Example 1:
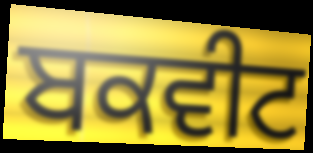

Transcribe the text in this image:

ਬਕਵੀਟ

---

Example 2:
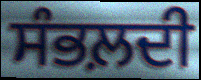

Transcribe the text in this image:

ਸੰਭਲ਼ਦੀ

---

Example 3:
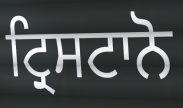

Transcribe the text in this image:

ਟ੍ਰਿਸਟਾਨੋ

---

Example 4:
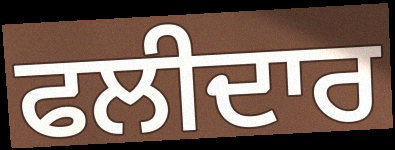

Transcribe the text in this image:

ਫਲੀਦਾਰ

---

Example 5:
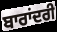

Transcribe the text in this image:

ਬਾਰਾਂਦਰੀ